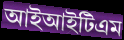
আইআইটিএম